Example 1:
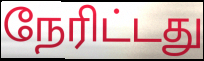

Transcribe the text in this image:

நேரிட்டது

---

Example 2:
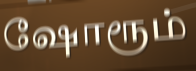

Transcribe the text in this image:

ஷோரூம்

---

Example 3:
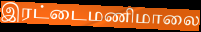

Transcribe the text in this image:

இரட்டைமணிமாலை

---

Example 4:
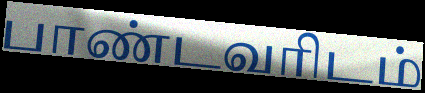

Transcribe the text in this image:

பாண்டவரிடம்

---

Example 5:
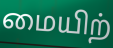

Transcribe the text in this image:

மையிற்